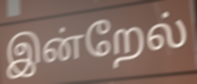
இன்றேல்